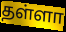
தள்ளா